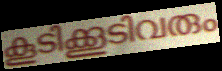
കൂടിക്കൂടിവരും